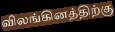
விலங்கினத்திற்கு